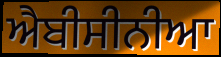
ਐਬੀਸੀਨੀਆ